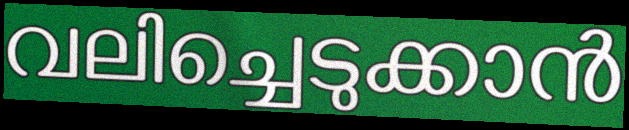
വലിച്ചെടുക്കാൻ